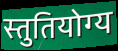
स्तुतियोग्य